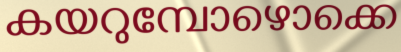
കയറുമ്പോഴൊക്കെ